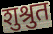
शुश्रुत